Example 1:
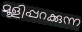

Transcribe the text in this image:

മൂളിപ്പറക്കുന്ന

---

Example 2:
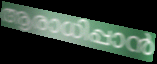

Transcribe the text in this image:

ആരാധിപ്പാൻ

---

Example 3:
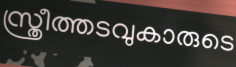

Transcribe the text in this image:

സ്ത്രീത്തടവുകാരുടെ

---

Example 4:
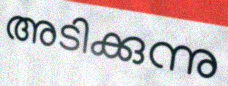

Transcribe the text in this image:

അടിക്കുന്നു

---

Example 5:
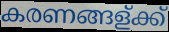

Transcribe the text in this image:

കരണങ്ങള്ക്ക്